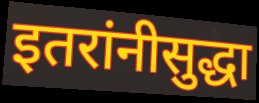
इतरांनीसुद्धा